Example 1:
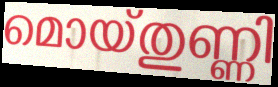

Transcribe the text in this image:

മൊയ്തുണ്ണി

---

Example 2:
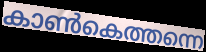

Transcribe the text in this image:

കാൺകെത്തന്നെ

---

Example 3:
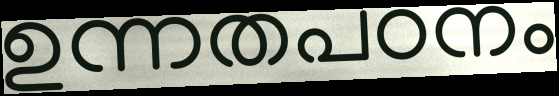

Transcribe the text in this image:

ഉന്നതപഠനം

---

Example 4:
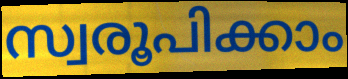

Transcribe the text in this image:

സ്വരൂപിക്കാം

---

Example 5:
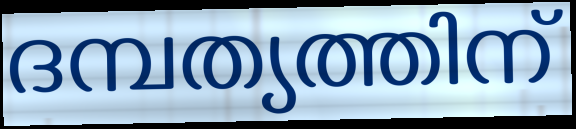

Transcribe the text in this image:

ദമ്പത്യത്തിന്